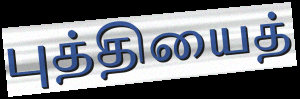
புத்தியைத்